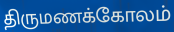
திருமணக்கோலம்